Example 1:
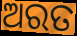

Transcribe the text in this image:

ଅରତ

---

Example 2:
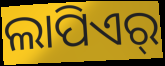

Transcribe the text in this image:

ଲାପିଏର୍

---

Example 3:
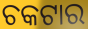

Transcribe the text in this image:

ଚକଟାର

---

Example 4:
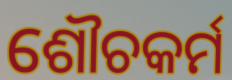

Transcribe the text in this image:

ଶୌଚକର୍ମ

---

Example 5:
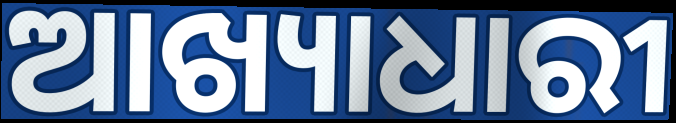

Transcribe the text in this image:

ଆଖ୍ୟାଧାରୀ